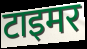
टाइमर